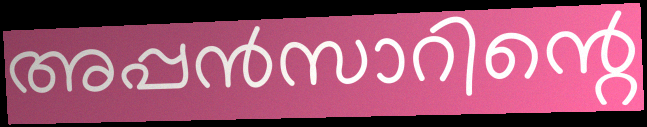
അപ്പൻസാറിന്റെ